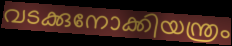
വടക്കുനോക്കിയന്ത്രം